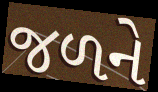
જળને